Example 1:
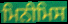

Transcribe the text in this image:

ਮਿਨੀਮਿਸ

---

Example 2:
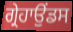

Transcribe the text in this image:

ਗ੍ਰੇਹਾਉਂਡਸ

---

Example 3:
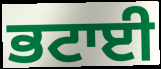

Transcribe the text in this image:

ਭਟਾਈ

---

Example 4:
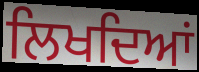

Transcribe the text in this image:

ਲਿਖਦਿਆਂ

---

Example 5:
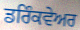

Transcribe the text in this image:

ਡਰਿੰਕਵੇਅਰ